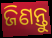
ଜିଣନ୍ତୁ